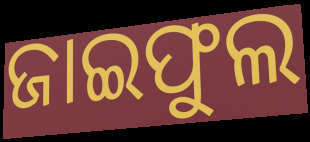
ଜାଇଫୁଲ